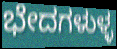
ಭೇದಗಳುಳ್ಳ